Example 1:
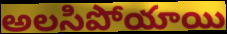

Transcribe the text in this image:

అలసిపోయాయి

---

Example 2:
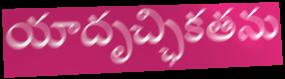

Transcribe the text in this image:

యాదృచ్ఛికతను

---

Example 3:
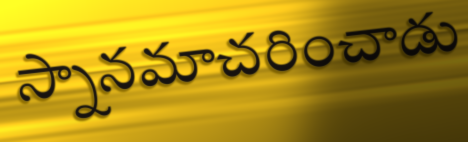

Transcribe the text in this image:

స్నానమాచరించాడు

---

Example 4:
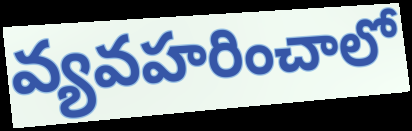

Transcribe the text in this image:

వ్యవహరించాలో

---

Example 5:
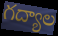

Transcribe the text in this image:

గద్యాల